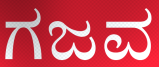
ಗಜವ